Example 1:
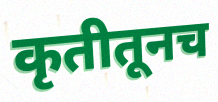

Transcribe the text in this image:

कृतीतूनच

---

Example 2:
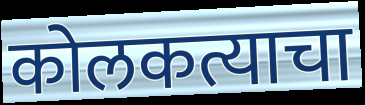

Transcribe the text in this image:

कोलकत्याचा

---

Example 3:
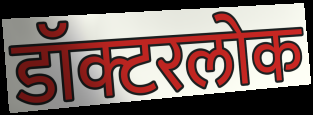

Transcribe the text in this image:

डॉक्टरलोक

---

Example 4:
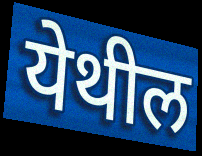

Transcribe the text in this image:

येथील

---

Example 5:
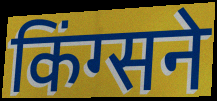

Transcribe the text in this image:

किंग्सने